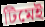
টিমেই